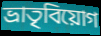
ভ্রাতৃবিয়োগ